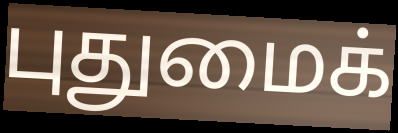
புதுமைக்